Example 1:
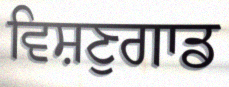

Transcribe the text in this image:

ਵਿਸ਼ਣੁਗਾਡ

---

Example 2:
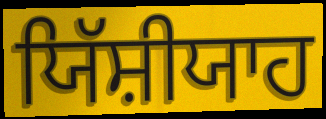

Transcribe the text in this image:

ਯਿੱਸ਼ੀਯਾਹ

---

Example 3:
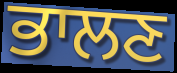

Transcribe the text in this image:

ਭਾਲਣ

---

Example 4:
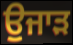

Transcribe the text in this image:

ਉੁਜਾੜ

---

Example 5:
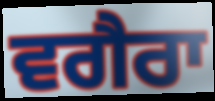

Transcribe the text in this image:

ਵਗੈਰਾ